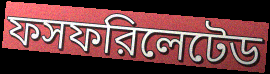
ফসফরিলেটেড